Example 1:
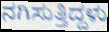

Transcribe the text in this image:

ನಗಿಸುತ್ತಿದ್ದಳು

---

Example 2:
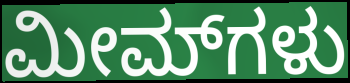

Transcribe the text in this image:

ಮೀಮ್‌ಗಳು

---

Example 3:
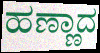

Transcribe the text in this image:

ಹಣ್ಣಾದ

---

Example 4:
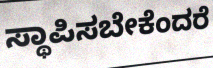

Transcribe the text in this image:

ಸ್ಥಾಪಿಸಬೇಕೆಂದರೆ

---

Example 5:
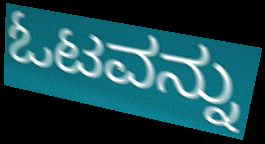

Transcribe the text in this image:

ಓಟವನ್ನು